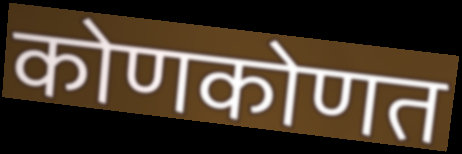
कोणकोणत